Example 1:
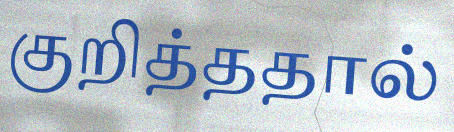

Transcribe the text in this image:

குறித்ததால்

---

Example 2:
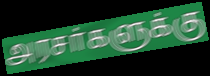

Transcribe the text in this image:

அரசர்களுக்கு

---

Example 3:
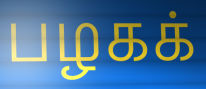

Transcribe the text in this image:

பழகக்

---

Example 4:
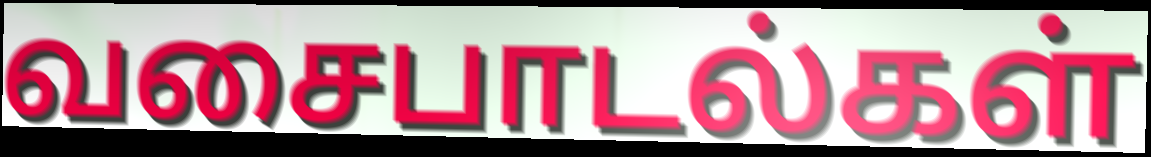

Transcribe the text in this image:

வசைபாடல்கள்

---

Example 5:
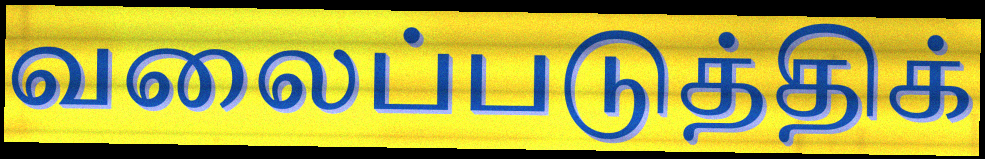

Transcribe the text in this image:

வலைப்படுத்திக்